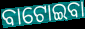
ବାଟୋଇବା